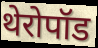
थेरोपॉड